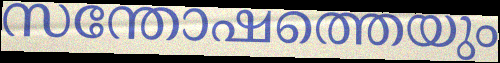
സന്തോഷത്തെയും